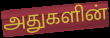
அதுகளின்